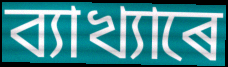
ব্যাখ্যাৰে